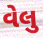
વેલુ